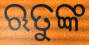
ଋତୁଙ୍କ